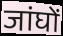
जांघों